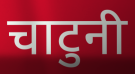
चाटुनी